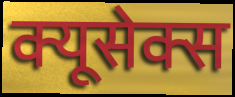
क्यूसेक्स